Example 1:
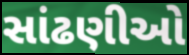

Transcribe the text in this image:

સાંઢણીઓ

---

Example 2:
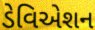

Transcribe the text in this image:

ડેવિએશન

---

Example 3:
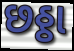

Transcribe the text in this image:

છઠ્ઠા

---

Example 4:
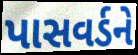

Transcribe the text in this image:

પાસવર્ડને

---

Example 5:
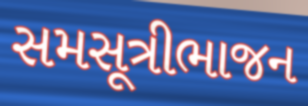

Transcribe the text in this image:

સમસૂત્રીભાજન